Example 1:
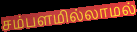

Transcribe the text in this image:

சம்பளமில்லாமல்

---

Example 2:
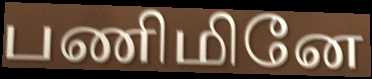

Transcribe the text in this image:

பணிமினே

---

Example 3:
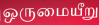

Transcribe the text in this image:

ஒருமையீறு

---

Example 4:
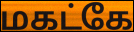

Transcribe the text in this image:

மகட்கே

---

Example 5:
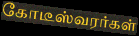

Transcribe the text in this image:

கோடீஸ்வரர்கள்